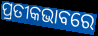
ପ୍ରତୀକଭାବରେ